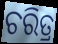
ଚରିତ୍ର